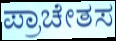
ಪ್ರಾಚೇತಸ